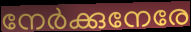
നേർക്കുനേരേ